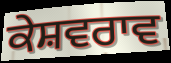
ਕੇਸ਼ਵਰਾਵ